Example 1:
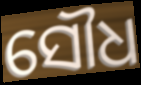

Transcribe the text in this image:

ସୌଧ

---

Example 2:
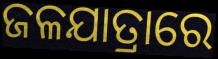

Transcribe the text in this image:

ଜଳଯାତ୍ରାରେ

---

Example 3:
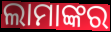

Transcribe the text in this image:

ଲାମାଙ୍କର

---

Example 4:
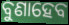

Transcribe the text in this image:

ବୁଣାହେବ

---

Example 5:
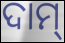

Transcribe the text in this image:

ଦାମ୍